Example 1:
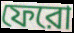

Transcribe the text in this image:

ফেরো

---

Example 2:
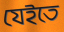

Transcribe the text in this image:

যেইতে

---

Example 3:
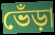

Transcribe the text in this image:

ভেঁড়া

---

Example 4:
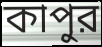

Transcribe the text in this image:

কাপুর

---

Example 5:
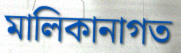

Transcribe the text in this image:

মালিকানাগত